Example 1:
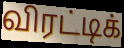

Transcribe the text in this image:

விரட்டிக்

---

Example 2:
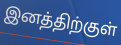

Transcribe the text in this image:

இனத்திற்குள்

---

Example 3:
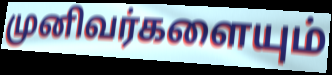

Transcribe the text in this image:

முனிவர்களையும்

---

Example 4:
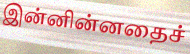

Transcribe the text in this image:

இன்னின்னதைச்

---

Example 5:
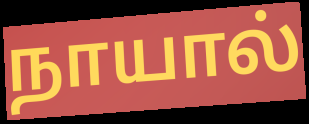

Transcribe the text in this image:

நாயால்